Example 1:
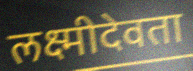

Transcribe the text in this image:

लक्ष्मीदेवता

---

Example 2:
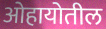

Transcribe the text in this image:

ओहायोतील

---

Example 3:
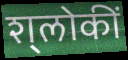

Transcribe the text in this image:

श्लोकीं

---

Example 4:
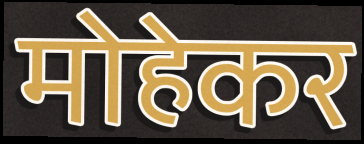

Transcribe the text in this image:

मोहेकर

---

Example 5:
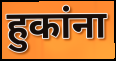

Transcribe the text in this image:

हुकांना